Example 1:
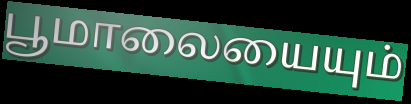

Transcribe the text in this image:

பூமாலையையும்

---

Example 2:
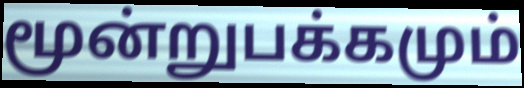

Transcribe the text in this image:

மூன்றுபக்கமும்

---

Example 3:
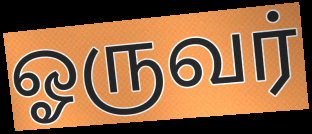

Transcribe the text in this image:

ஓருவர்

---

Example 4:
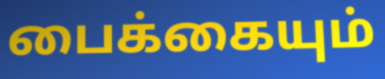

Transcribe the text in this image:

பைக்கையும்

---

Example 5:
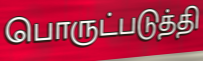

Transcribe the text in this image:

பொருட்படுத்தி